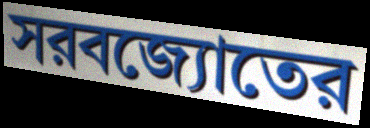
সরবজ্যোতের